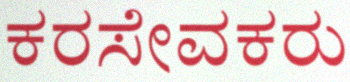
ಕರಸೇವಕರು